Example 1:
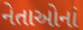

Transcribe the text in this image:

નેતાઓનાં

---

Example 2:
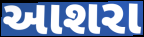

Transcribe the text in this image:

આશરા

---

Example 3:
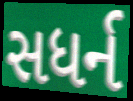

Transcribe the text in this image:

સધર્ન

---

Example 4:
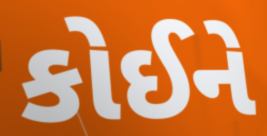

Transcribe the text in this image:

કોઈને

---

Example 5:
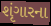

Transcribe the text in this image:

શૃંગારના